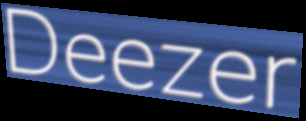
Deezer